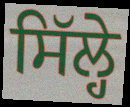
ਸਿੱਲ੍ਹੇ